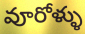
వూరోళ్ళు